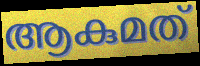
ആകുമത്